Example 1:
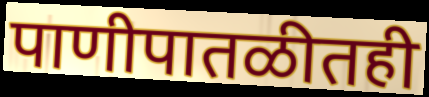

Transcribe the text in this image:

पाणीपातळीतही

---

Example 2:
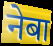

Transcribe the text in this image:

नेबा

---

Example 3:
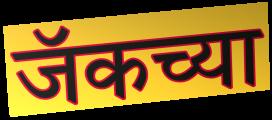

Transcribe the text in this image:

जॅकच्या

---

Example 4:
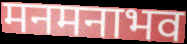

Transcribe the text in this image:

मनमनाभव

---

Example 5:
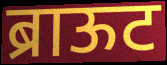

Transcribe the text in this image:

ब्राऊट